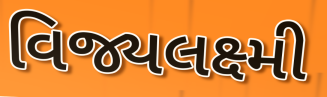
વિજ્યલક્ષ્મી